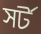
সর্ট